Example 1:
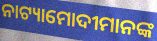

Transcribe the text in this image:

ନାଟ୍ୟାମୋଦୀମାନଙ୍କ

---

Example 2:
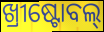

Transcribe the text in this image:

ଖ୍ରୀଷ୍ଟୋବଲ୍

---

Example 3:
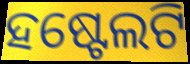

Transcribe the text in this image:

ହଷ୍ଟେଲଟି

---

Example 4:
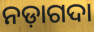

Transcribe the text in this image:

ନଡ଼ାଗଦା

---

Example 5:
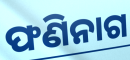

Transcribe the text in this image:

ଫଣିନାଗ